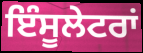
ਇੰਸੂਲੇਟਰਾਂ